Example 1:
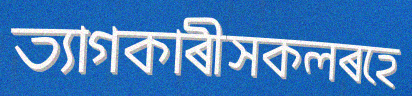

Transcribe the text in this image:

ত্যাগকাৰীসকলৰহে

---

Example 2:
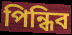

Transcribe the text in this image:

পিন্ধিব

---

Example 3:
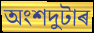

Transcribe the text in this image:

অংশদুটাৰ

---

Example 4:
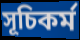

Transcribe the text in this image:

সূচিকৰ্ম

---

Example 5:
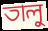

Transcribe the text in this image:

তালু